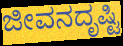
ಜೀವನದೃಷ್ಟಿ